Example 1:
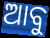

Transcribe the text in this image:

ଆବୁ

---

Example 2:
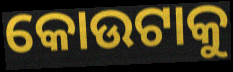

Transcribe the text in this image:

କୋଉଟାକୁ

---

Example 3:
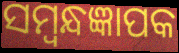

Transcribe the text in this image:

ସମ୍ବନ୍ଧଜ୍ଞାପକ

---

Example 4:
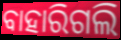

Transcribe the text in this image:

ବାହାରିଗଲି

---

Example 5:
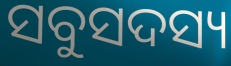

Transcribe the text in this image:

ସବୁସଦସ୍ୟ